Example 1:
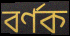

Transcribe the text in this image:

বর্ণক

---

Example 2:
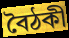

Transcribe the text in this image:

বৈঠকী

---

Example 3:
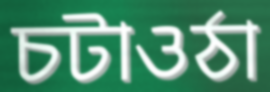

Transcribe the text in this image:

চটাওঠা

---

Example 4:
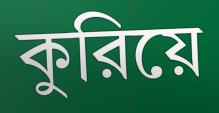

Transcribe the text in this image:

কুরিয়ে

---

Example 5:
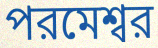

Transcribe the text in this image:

পরমেশ্বর